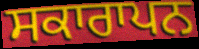
ਸਕਾਰਾਪਨ